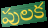
పులక